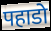
पहाडो